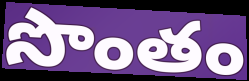
సొంతం